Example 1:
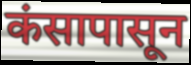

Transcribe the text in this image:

कंसापासून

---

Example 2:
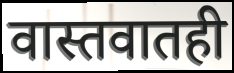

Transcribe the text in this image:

वास्तवातही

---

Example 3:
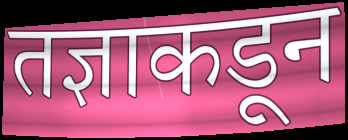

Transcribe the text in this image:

तज्ञाकडून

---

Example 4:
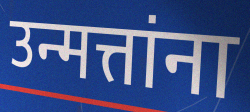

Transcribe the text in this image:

उन्मत्तांना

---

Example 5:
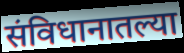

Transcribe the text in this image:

संविधानातल्या